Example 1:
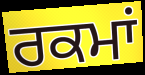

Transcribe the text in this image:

ਰਕਮਾਂ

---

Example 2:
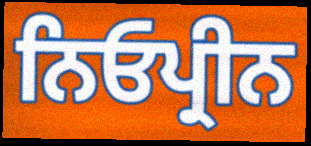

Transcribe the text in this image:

ਨਿਓਪ੍ਰੀਨ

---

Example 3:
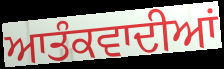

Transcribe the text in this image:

ਆਤੰਕਵਾਦੀਆਂ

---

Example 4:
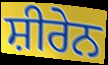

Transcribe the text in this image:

ਸ਼ੀਰੇਨ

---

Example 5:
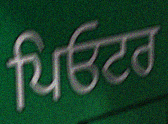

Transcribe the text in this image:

ਪਿਓਟਰ